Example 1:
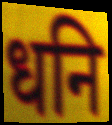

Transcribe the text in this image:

धनि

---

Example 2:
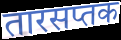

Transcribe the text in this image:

तारसप्तक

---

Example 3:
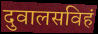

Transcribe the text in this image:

दुवालसविहं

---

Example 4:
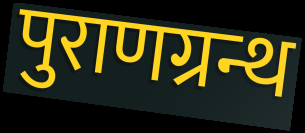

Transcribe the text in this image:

पुराणग्रन्थ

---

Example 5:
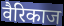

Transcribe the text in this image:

वैरिकाज